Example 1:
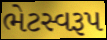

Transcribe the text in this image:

ભેટસ્વરૂપ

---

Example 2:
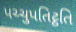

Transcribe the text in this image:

પચ્ચુપતિટ્ઠતિ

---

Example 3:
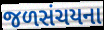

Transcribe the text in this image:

જળસંચયના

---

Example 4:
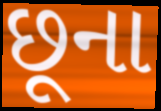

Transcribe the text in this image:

છૂના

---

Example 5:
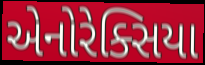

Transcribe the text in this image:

એનોરેક્સિયા